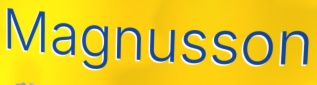
Magnusson